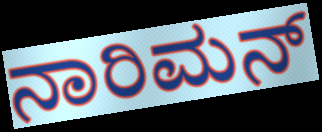
ನಾರಿಮನ್